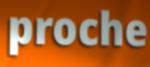
proche